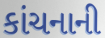
કાંચનાની